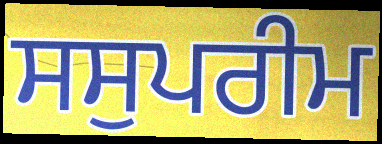
ਸਸੁਪਰੀਮ